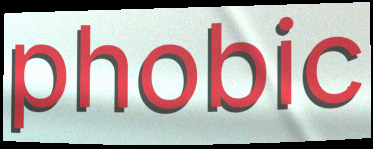
phobic